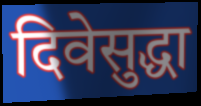
दिवेसुद्धा